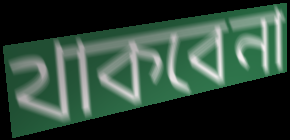
থাকবেনা